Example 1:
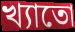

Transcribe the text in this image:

খ্যাতো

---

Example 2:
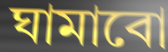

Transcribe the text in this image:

ঘামাবো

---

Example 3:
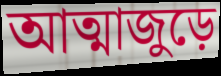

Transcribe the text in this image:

আত্মাজুড়ে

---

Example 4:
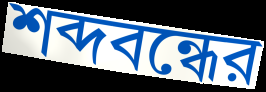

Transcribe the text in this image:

শব্দবন্ধের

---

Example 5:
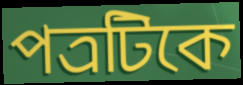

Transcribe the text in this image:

পত্রটিকে